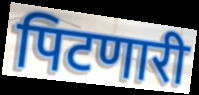
पिटणारी